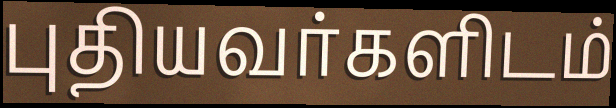
புதியவர்களிடம்